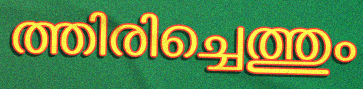
ത്തിരിച്ചെത്തും